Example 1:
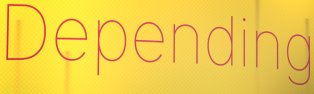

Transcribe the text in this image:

Depending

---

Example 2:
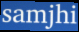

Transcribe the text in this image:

samjhi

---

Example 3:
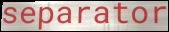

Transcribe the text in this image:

separator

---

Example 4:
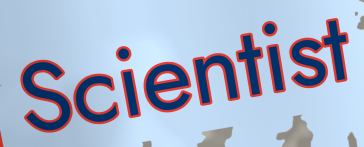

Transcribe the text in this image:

Scientist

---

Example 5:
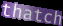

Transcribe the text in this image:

thatch